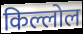
किल्लोल